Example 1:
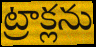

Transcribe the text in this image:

ట్రాక్లను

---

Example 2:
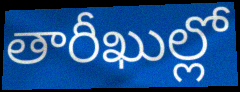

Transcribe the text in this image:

తారీఖుల్లో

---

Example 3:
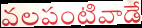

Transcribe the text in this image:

వలపంటివాడే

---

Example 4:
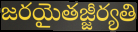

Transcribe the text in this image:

జరయైతజ్జీర్యతి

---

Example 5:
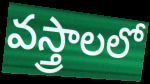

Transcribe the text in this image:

వస్త్రాలలో